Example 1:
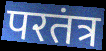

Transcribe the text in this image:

परतंत्र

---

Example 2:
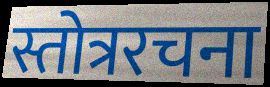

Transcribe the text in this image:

स्तोत्ररचना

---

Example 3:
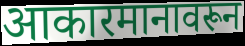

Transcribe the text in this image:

आकारमानावरून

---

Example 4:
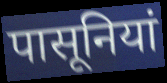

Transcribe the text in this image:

पासूनियां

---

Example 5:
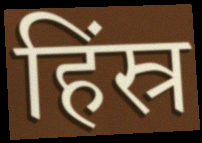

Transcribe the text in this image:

हिंस्र